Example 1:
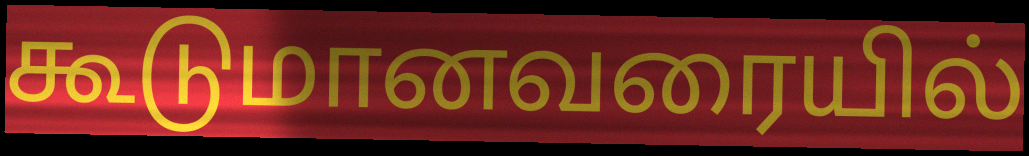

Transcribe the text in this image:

கூடுமானவரையில்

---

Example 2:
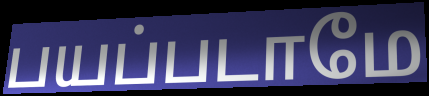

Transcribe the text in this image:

பயப்படாமே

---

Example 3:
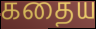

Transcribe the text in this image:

கதைய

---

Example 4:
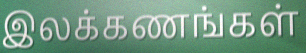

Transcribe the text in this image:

இலக்கணங்கள்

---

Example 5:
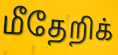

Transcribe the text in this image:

மீதேறிக்